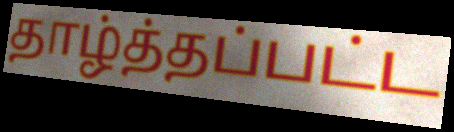
தாழ்த்தப்பட்ட